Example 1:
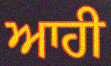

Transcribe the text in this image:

ਆਹੀ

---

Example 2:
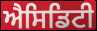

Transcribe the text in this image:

ਐਸਿਡਿਟੀ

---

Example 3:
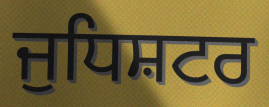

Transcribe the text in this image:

ਜੁਧਿਸ਼ਟਰ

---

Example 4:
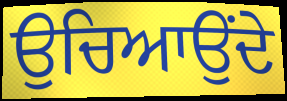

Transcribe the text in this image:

ਉਚਿਆਉਂਦੇ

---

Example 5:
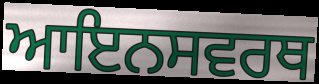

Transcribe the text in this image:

ਆਇਨਸਵਰਥ